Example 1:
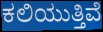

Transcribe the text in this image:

ಕಲಿಯುತ್ತಿವೆ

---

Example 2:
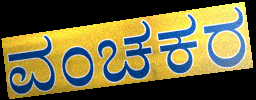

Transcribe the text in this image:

ವಂಚಕರ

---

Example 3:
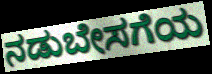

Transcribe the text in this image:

ನಡುಬೇಸಗೆಯ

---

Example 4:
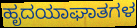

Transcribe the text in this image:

ಹೃದಯಾಘಾತಗಳ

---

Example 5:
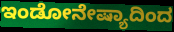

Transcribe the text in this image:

ಇಂಡೋನೇಷ್ಯಾದಿಂದ